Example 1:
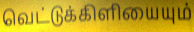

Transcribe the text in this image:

வெட்டுக்கிளியையும்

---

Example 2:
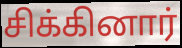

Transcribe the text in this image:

சிக்கினார்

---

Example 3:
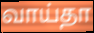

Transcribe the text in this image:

வாய்தா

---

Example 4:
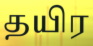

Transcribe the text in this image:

தயிர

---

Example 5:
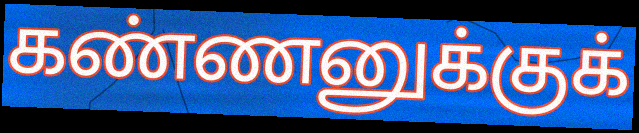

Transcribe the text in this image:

கண்ணனுக்குக்